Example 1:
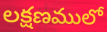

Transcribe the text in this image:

లక్షణములో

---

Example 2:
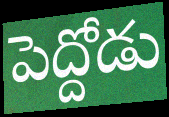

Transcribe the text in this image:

పెద్దోడు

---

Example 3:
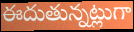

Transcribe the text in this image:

ఈదుతున్నట్లుగా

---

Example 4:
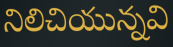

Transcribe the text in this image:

నిలిచియున్నవి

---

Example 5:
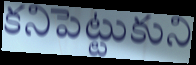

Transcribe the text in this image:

కనిపెట్టుకుని